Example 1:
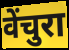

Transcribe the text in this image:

वेंचुरा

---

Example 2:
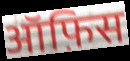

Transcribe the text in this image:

ऑफ़िस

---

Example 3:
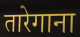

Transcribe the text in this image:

तारेगाना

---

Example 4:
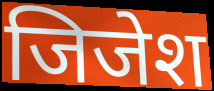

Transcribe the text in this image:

जिजेश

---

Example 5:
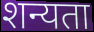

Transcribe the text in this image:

शन्यता